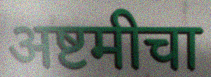
अष्टमीचा